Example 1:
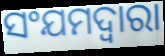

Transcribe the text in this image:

ସଂଯମଦ୍ୱାରା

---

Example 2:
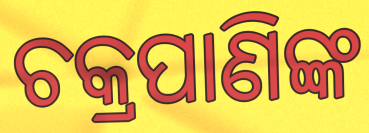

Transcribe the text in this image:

ଚକ୍ରପାଣିଙ୍କ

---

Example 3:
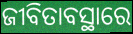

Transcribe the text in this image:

ଜୀବିତାବସ୍ଥାରେ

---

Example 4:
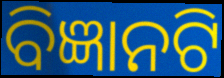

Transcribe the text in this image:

ବିଜ୍ଞାନଟି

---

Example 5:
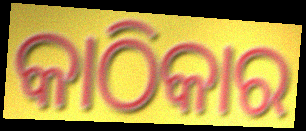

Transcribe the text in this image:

କାଠିକାର